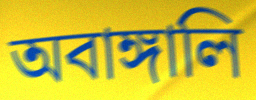
অবাঙ্গালি